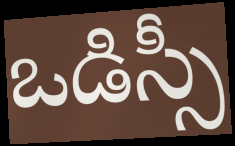
ఒడిస్సీ